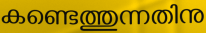
കണ്ടെത്തുന്നതിനു